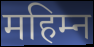
महिम्न